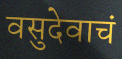
वसुदेवाचं